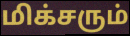
மிக்சரும்